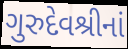
ગુરુદેવશ્રીનાં